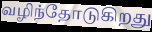
வழிந்தோடுகிறது